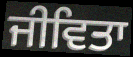
ਜੀਵਿਤਾ